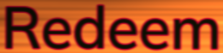
Redeem